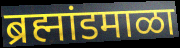
ब्रह्मांडमाळा